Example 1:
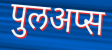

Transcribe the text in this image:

पुलअप्स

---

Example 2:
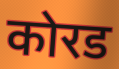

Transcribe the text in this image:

कोरड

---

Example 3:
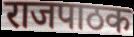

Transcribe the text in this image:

राजपाठक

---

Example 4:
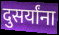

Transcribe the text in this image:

दुसर्यांना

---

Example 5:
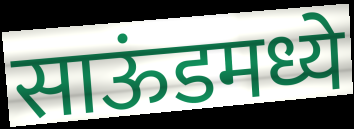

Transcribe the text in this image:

साऊंडमध्ये